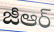
జీఆర్